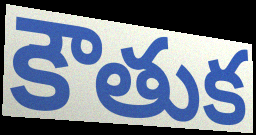
కౌతుక